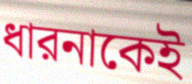
ধারনাকেই